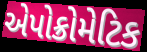
એપોક્રોમેટિક